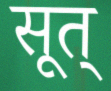
सूत्